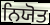
ਨਿਯੋਤ